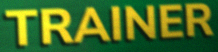
TRAINER